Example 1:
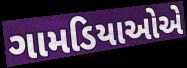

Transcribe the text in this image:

ગામડિયાઓએ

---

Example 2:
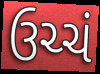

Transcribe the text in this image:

ઉચ્ચં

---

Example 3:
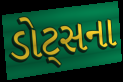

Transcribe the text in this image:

ડોટ્સના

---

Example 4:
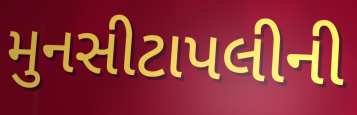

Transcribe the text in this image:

મુનસીટાપલીની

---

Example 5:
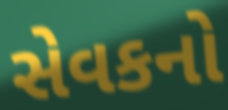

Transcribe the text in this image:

સેવકનો